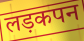
लड़कपन